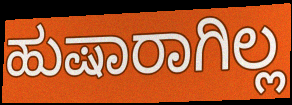
ಹುಷಾರಾಗಿಲ್ಲ